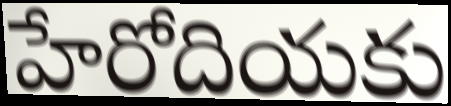
హేరోదియకు